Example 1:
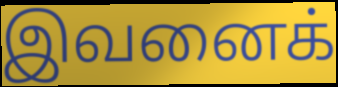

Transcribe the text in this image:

இவனைக்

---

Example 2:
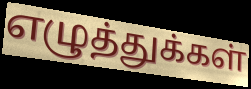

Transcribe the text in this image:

எழுத்துக்கள்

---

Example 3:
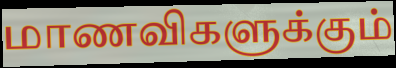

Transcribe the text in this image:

மாணவிகளுக்கும்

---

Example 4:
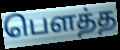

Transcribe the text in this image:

பௌத்த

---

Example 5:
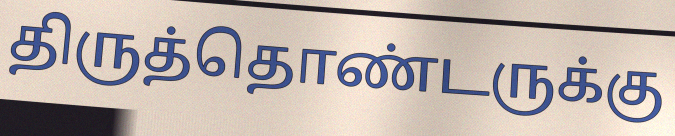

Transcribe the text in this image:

திருத்தொண்டருக்கு